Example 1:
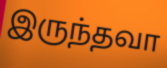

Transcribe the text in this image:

இருந்தவா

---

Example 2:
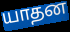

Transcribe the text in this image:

யாதன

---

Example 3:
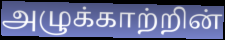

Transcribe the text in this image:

அழுக்காற்றின்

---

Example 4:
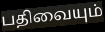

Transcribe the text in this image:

பதிவையும்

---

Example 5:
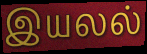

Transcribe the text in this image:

இயலல்